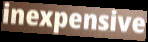
inexpensive